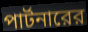
পার্টনারের